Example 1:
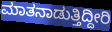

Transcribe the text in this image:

ಮಾತನಾಡುತ್ತಿದ್ದೀರಿ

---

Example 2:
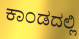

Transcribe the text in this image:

ಕಾಂಡದಲ್ಲಿ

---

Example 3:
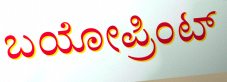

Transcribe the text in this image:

ಬಯೋಪ್ರಿಂಟ್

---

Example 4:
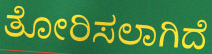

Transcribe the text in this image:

ತೋರಿಸಲಾಗಿದೆ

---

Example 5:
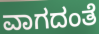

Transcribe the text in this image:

ವಾಗದಂತೆ